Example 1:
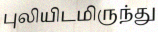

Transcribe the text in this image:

புலியிடமிருந்து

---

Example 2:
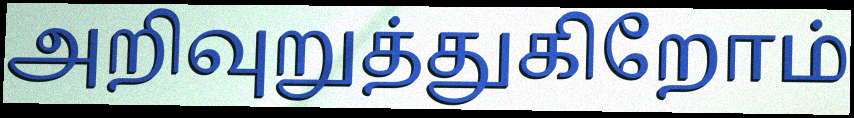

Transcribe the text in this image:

அறிவுறுத்துகிறோம்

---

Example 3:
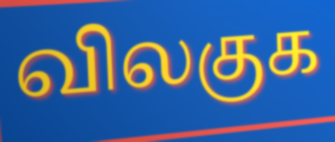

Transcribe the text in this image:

விலகுக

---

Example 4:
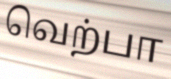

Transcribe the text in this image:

வெற்பா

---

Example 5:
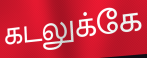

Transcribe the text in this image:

கடலுக்கே